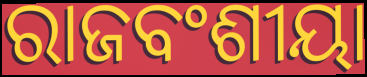
ରାଜବଂଶୀୟା